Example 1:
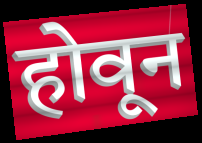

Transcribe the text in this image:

होवून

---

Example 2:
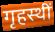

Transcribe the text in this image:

गृहस्थीं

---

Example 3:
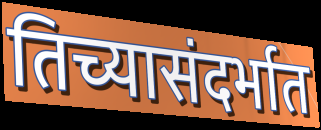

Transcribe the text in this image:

तिच्यासंदर्भात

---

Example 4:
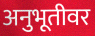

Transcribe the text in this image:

अनुभूतीवर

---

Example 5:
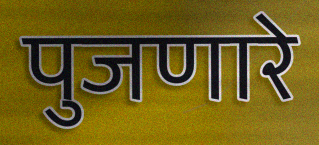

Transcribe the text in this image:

पुजणारे